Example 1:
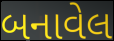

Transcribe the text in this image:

બનાવેલ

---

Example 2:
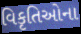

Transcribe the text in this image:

વિકૃતિઓના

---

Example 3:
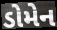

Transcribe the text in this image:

ડોમેન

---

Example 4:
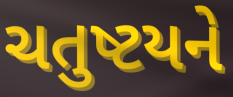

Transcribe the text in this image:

ચતુષ્ટયને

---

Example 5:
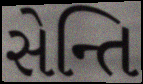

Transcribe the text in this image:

સેન્તિ